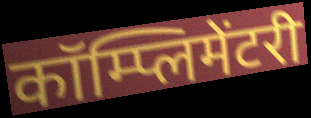
कॉम्प्लिमेंटरी